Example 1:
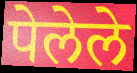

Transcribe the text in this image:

पेलेले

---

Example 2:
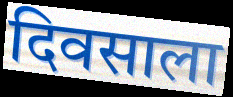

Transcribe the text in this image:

दिवसाला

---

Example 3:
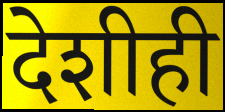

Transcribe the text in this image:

देशीही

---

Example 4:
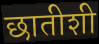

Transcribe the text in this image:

छातीशी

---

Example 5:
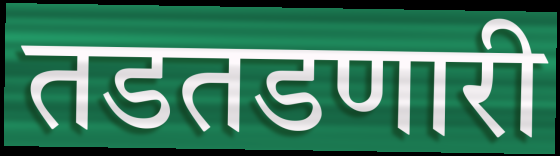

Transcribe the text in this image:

तडतडणारी